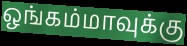
ஒங்கம்மாவுக்கு